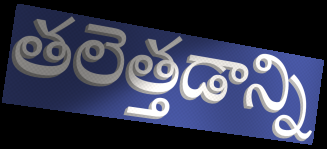
తలెత్తడాన్ని